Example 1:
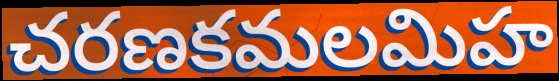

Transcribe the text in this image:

చరణకమలమిహ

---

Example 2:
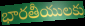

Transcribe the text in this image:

భారతీయులకు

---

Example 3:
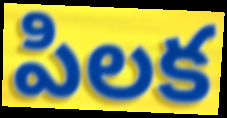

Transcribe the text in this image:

పిలక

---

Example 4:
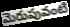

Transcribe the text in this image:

మెరుపువంటి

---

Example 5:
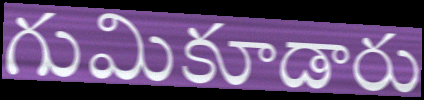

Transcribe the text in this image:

గుమికూడారు